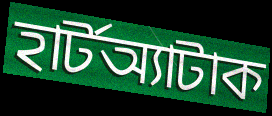
হার্টঅ্যাটাক